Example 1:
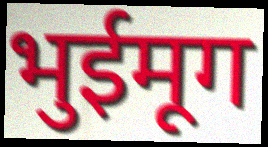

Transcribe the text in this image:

भुईमूग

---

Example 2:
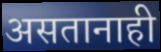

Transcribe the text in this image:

असतानाही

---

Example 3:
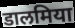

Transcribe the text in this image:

डालमिया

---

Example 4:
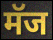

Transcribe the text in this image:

मॅज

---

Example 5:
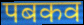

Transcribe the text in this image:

पबकव